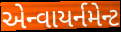
એન્વાયર્નમેન્ટ